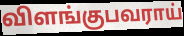
விளங்குபவராய்